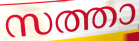
സത്താ